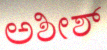
ಅಶೀಶ್